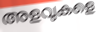
അളവുകളെ